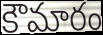
కౌమారం